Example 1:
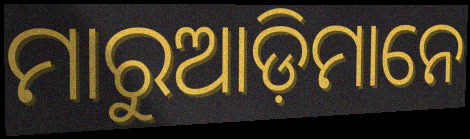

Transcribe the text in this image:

ମାରୁଆଡ଼ିମାନେ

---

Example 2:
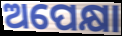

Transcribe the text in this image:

ଅପେକ୍ଷା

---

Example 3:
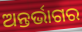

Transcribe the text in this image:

ଅନ୍ତର୍ଭାଗର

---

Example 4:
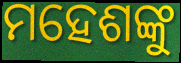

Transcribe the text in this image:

ମହେଶଙ୍କୁ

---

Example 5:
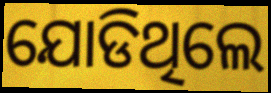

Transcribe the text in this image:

ଯୋଡିଥିଲେ